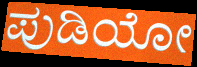
ಪುಡಿಯೋ